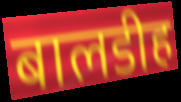
बालडीह